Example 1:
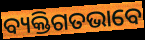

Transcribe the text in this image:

ବ୍ୟକ୍ତିଗତଭାବେ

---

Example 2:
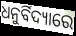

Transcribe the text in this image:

ଧନୁର୍ବିଦ୍ୟାରେ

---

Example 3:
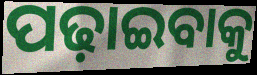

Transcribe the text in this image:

ପଢ଼ାଇବାକୁ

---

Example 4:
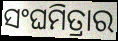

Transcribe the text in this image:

ସଂଘମିତ୍ରାର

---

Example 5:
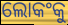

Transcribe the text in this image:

ଲୋକଂକୁ